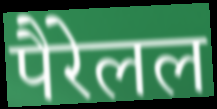
पैरेलल